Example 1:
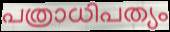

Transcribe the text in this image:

പത്രാധിപത്യം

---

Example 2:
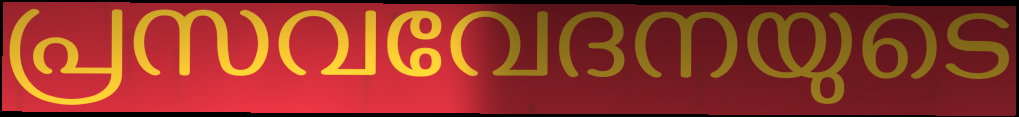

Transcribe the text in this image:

പ്രസവവേദനയുടെ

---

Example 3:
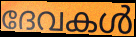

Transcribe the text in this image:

ദേവകൾ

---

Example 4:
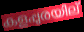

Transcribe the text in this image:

കളപ്പുരയില്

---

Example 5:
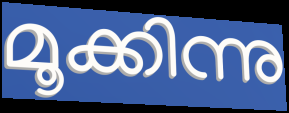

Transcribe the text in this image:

മൂക്കിന്നു